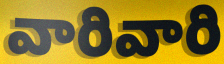
వారివారి